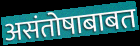
असंतोषाबाबत